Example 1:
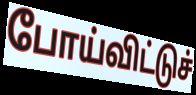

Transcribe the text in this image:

போய்விட்டுச்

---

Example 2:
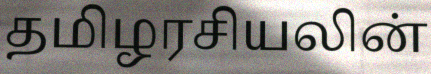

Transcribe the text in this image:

தமிழரசியலின்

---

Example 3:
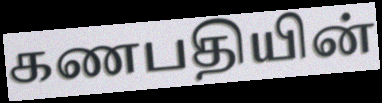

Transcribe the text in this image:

கணபதியின்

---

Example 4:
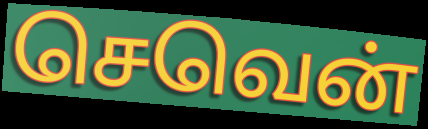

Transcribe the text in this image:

செவென்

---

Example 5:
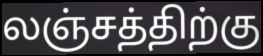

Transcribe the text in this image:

லஞ்சத்திற்கு